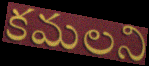
కమలని